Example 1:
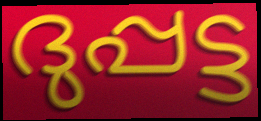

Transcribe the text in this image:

ദുപ്പട്ട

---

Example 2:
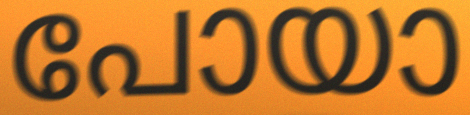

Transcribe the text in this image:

പോയാ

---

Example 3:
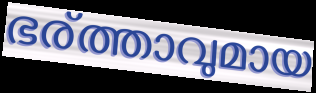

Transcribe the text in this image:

ഭര്ത്താവുമായ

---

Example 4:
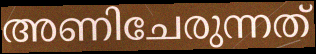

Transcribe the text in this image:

അണിചേരുന്നത്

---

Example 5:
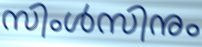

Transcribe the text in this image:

സിംൾസിനും